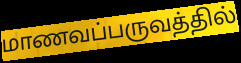
மாணவப்பருவத்தில்